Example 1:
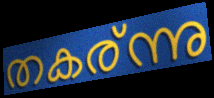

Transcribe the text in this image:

തകര്ന്നു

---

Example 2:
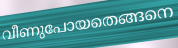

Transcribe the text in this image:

വീണുപോയതെങ്ങനെ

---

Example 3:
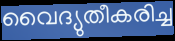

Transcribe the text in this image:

വൈദ്യുതീകരിച്ച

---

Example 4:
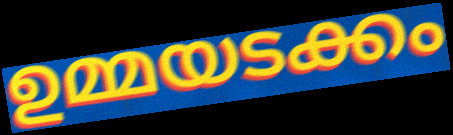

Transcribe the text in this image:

ഉമ്മയടക്കം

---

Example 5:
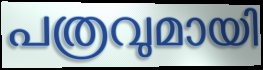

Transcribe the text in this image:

പത്രവുമായി